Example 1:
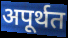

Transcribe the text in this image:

अपूर्थत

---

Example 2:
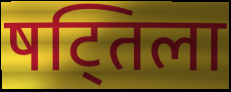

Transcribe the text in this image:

षट्तिला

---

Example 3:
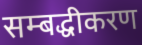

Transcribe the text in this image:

सम्बद्धीकरण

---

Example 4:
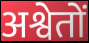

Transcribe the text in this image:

अश्वेतों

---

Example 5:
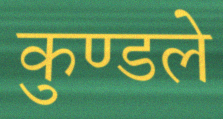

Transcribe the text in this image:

कुण्डले